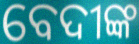
ବେଦୀଙ୍କ